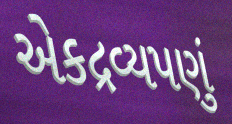
એકદ્રવ્યપણું